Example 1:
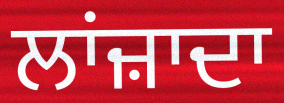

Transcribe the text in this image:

ਲਾਂਜ਼ਾਦਾ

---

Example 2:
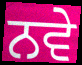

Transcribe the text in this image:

ਨਵੇ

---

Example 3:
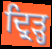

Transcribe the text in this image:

ਦ੍ਰਿੜ੍ਹ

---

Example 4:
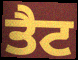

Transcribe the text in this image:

ਤੈਟ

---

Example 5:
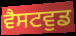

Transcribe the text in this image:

ਵੈਸਟਵੁਡ